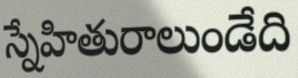
స్నేహితురాలుండేది